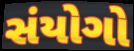
સંયોગો